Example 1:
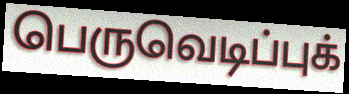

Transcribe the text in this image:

பெருவெடிப்புக்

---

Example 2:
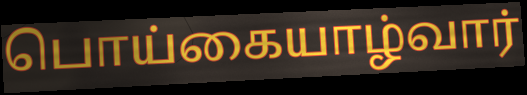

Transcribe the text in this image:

பொய்கையாழ்வார்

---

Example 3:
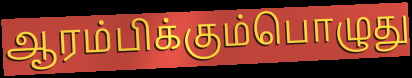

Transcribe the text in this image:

ஆரம்பிக்கும்பொழுது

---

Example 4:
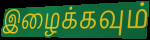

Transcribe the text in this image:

இழைக்கவும்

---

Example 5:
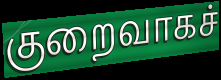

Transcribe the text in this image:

குறைவாகச்